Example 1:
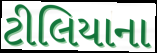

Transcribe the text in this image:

ટીલિયાના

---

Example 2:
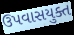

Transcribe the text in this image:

ઉપવાસયુક્ત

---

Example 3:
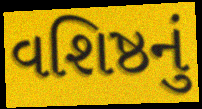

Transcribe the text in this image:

વશિષ્ઠનું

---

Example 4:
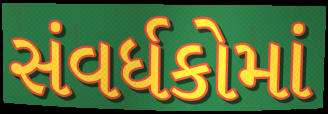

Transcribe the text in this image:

સંવર્ધકોમાં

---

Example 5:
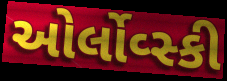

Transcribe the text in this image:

ઓર્લોવ્સ્કી